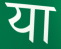
या